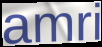
amri